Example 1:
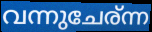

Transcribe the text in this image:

വന്നുചേര്ന്ന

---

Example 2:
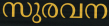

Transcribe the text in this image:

സുരവന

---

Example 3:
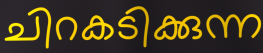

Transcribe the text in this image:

ചിറകടിക്കുന്ന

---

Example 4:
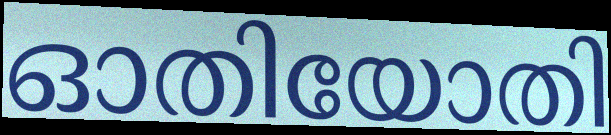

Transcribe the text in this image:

ഓതിയോതി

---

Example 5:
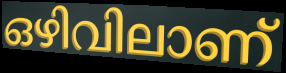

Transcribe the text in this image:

ഒഴിവിലാണ്